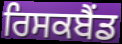
ਰਿਸਕਬੈਂਡ